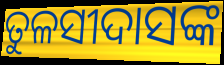
ତୁଳସୀଦାସଙ୍କ